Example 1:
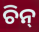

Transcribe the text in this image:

ଚିନ୍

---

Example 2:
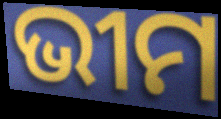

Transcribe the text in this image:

ଭୀମ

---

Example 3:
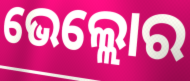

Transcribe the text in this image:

ଭେଲ୍ଲୋର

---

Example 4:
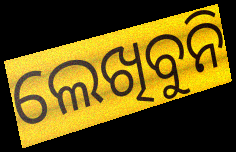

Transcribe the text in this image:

ଲେଖିବୁନି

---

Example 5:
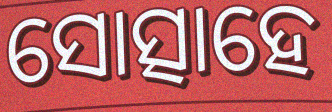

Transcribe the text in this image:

ସୋତ୍ସାହେ